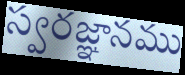
స్వరజ్ఞానము